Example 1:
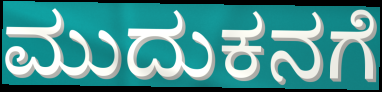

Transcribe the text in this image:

ಮುದುಕನಗೆ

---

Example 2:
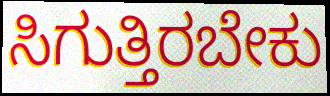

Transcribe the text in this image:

ಸಿಗುತ್ತಿರಬೇಕು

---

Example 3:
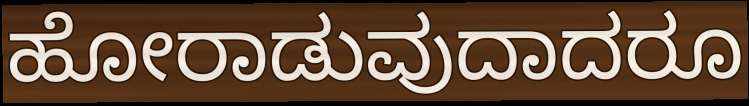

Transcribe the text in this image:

ಹೋರಾಡುವುದಾದರೂ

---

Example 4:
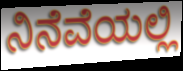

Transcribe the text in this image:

ನಿನೆವೆಯಲ್ಲಿ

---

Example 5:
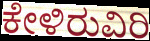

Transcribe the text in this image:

ಕೇಳಿರುವಿರಿ